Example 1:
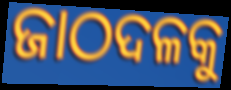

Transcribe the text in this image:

ଜାଠଦଳକୁ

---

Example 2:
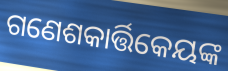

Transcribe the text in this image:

ଗଣେଶକାର୍ତ୍ତିକେୟଙ୍କ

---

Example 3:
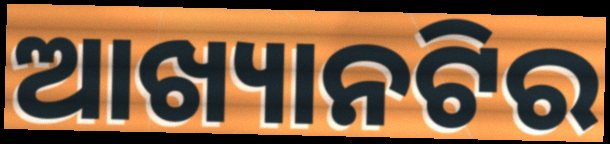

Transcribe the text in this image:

ଆଖ୍ୟାନଟିର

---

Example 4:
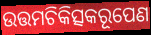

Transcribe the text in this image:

ଉତ୍ତମଚିକିତ୍ସକରୂପେଣ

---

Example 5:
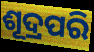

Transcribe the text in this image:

ଶୂଦ୍ରପରି